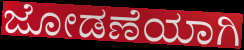
ಜೋಡಣೆಯಾಗಿ